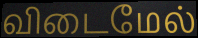
விடைமேல்